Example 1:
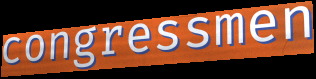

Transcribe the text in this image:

congressmen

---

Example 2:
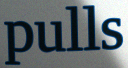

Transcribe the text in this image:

pulls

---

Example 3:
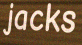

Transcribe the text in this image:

jacks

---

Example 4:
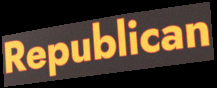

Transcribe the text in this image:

Republican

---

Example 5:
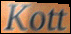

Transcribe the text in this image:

Kott